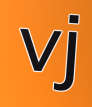
vj